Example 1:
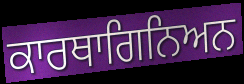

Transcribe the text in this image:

ਕਾਰਥਾਗਿਨਿਅਨ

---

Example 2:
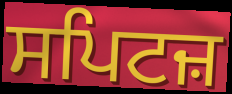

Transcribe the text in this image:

ਸਪਿਟਜ਼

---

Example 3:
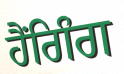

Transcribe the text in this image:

ਹੈਂਗਿੰਗ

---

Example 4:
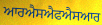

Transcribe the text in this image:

ਆਰਐਸਐਫਐਸਆਰ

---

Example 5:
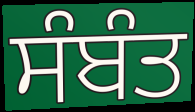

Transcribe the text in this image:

ਸੰਬੰਤ